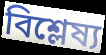
বিশ্লেষ্য